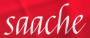
saache